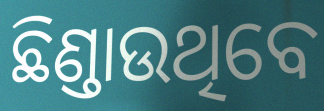
ଛିଣ୍ଡାଉଥିବେ